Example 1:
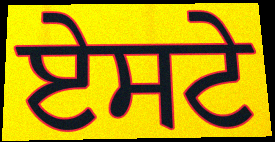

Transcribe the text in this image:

ਏਸਟੇ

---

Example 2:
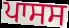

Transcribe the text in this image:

ਪਾਸਸ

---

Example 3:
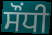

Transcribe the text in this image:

ਸੌਂਧੀ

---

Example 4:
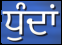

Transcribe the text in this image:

ਧੁੰਦਾਂ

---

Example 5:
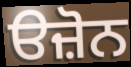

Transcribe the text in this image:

ੳਜ਼ੋਨ